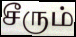
சீரும்